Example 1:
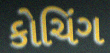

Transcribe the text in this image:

કોચિંગ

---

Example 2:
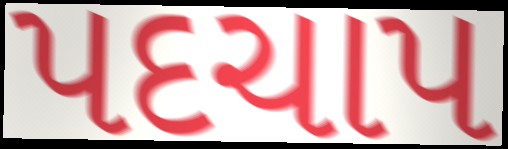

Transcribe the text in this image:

પદચાપ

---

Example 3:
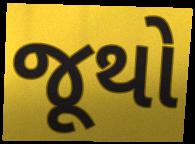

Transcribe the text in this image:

જૂથો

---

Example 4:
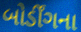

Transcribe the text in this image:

બોર્ડીંગના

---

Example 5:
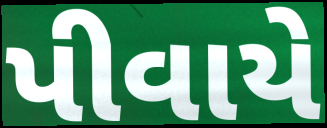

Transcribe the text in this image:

પીવાયે